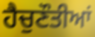
ਹੈਚੁਣੌਤੀਆਂ